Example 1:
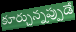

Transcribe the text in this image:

కూర్చున్నప్పుడే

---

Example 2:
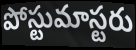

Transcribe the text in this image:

పోస్టుమాస్టరు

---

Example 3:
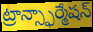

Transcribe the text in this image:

ట్రాన్స్ఫార్మేషన్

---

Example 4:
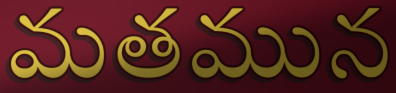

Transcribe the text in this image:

మతమున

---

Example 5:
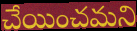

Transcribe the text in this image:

చేయించమని